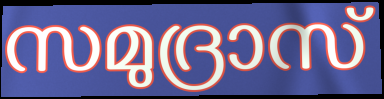
സമുദ്രാസ്